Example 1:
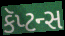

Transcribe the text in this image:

કૅપ્ટન્સ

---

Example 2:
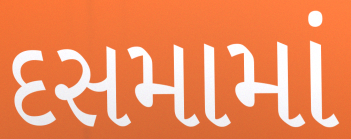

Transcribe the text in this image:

દસમામાં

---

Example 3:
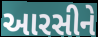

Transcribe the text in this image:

આરસીને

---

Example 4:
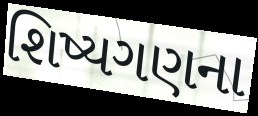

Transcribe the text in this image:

શિષ્યગણના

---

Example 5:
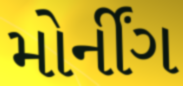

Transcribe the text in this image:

મોર્નીંગ